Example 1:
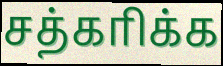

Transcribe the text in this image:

சத்கரிக்க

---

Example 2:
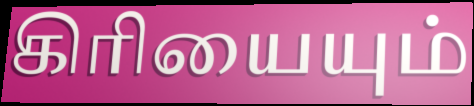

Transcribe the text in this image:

கிரியையும்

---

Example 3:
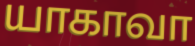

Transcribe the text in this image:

யாகாவா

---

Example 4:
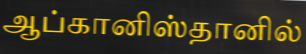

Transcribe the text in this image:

ஆப்கானிஸ்தானில்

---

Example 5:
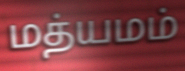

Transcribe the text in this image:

மத்யமம்